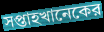
সপ্তাহখানেকের